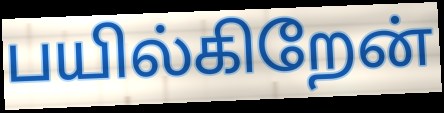
பயில்கிறேன்